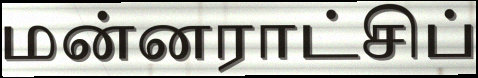
மன்னராட்சிப்